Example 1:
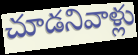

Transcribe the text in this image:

చూడనివాళ్లు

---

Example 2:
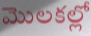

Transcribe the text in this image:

మొలకల్లో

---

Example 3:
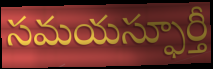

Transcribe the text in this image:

సమయస్ఫూర్తీ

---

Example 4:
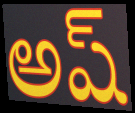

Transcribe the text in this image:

అష్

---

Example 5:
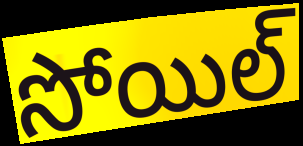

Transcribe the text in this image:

సోయిల్